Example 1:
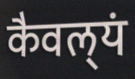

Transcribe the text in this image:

कैवल्यं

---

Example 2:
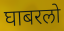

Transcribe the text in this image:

घाबरलो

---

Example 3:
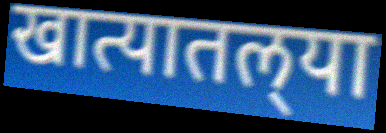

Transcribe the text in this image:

खात्यातल्या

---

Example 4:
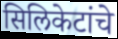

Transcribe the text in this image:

सिलिकेटांचे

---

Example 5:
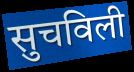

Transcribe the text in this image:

सुचविली